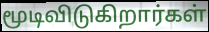
மூடிவிடுகிறார்கள்